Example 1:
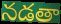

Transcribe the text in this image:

నడతా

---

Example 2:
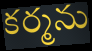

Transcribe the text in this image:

కర్మను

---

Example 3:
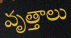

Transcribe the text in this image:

వృత్తాలు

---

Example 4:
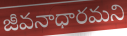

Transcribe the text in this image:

జీవనాధారమని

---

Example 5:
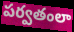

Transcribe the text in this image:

పర్వతంలా